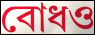
বোধও